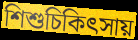
শিশুচিকিৎসায়